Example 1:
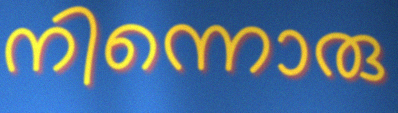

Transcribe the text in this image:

നിന്നൊരു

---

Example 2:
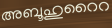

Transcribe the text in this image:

അബൂഹുറൈറ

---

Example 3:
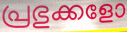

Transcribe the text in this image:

പ്രഭുക്കളോ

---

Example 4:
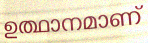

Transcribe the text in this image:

ഉത്ഥാനമാണ്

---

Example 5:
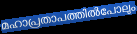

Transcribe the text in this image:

മഹാപ്രതാപത്തിൽപോലും